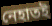
নেহাতই